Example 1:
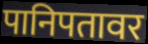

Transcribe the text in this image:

पानिपतावर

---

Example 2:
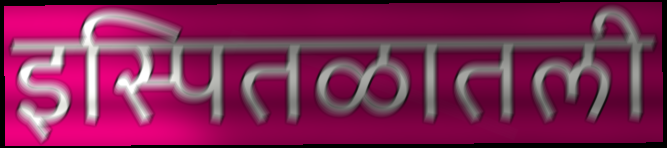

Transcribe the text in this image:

इस्पितळातली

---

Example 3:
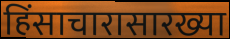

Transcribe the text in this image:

हिंसाचारासारख्या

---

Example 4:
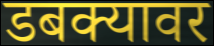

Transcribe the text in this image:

डबक्यावर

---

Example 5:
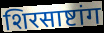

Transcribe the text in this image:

शिरसाष्टांग